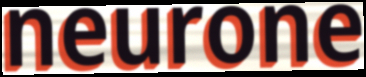
neurone